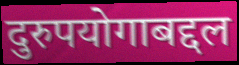
दुरुपयोगाबद्दल